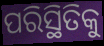
ପରିସ୍ଥିତିକୁ